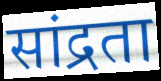
सांद्रता